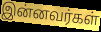
இன்னவர்கள்